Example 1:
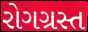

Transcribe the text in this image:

રોગગ્રસ્ત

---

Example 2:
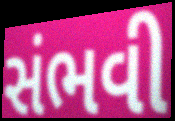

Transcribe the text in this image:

સંભવી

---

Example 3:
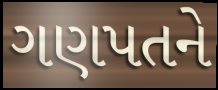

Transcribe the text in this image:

ગણપતને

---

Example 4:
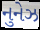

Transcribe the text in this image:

નુનેઝ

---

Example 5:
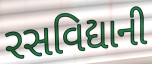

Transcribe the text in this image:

રસવિદ્યાની